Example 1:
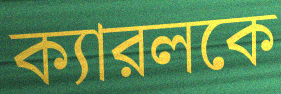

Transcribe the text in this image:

ক্যারলকে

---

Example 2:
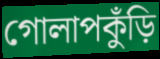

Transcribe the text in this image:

গোলাপকুঁড়ি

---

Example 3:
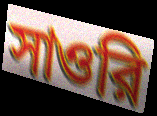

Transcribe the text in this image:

সাওরি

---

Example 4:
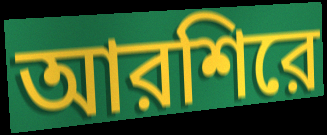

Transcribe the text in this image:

আরশিরে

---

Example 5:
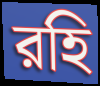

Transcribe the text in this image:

রহি